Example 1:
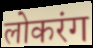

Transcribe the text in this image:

लोकरंग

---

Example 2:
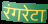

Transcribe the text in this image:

रंगरेटा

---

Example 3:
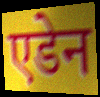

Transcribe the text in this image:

एडेन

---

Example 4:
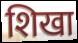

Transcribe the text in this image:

शिखा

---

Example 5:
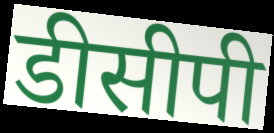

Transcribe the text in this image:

डीसीपी